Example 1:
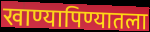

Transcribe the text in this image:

खाण्यापिण्यातला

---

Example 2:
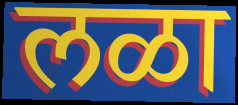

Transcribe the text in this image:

लळा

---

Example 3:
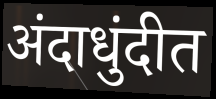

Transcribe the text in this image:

अंदाधुंदीत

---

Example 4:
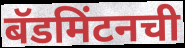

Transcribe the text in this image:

बॅडमिंटनची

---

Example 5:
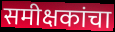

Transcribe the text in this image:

समीक्षकांचा